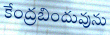
కేంద్రబిందువును